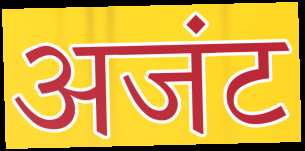
अजंट